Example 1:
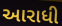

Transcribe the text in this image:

આરાધી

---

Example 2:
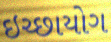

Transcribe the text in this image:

ઇચ્છાયોગ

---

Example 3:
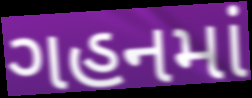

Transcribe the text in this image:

ગહનમાં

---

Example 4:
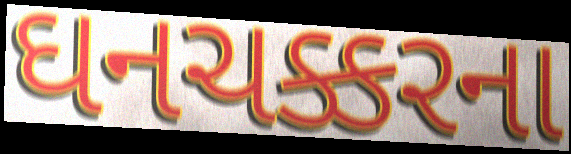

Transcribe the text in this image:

ઘનચક્કરના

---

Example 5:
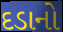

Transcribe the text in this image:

દડાનો